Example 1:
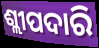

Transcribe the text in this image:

ଶ୍ଲୀପଦାରି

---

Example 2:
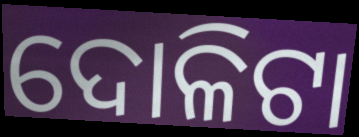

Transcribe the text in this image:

ଦୋଳିଟା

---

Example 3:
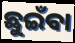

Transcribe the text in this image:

ଛୁଇଁବା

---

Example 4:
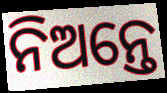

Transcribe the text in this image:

ନିଅନ୍ତେ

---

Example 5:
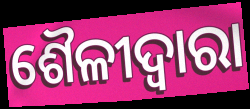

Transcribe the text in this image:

ଶୈଳୀଦ୍ୱାରା